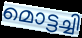
മൊട്ടച്ചി